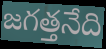
జగత్తనేది